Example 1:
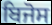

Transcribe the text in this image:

ਬਿਜੋਸ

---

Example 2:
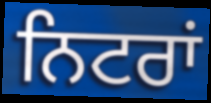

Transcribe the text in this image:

ਨਿਟਰਾਂ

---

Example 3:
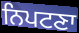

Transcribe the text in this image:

ਨਿਪਟਣਾ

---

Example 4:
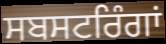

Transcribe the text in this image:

ਸਬਸਟਰਿੰਗਾਂ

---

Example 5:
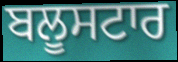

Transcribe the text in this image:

ਬਲੂਸਟਾਰ